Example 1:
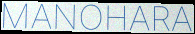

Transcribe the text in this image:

MANOHARA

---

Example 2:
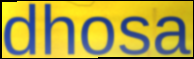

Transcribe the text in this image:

dhosa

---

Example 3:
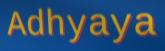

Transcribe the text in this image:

Adhyaya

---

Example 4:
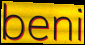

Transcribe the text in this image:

beni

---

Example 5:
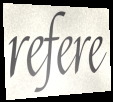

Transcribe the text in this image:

refere